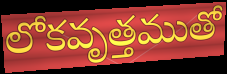
లోకవృత్తముతో